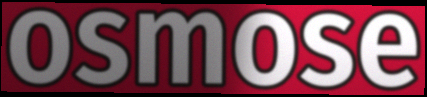
osmose